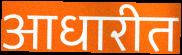
आधारीत